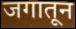
जगातून